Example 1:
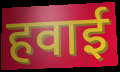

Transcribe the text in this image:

हवाई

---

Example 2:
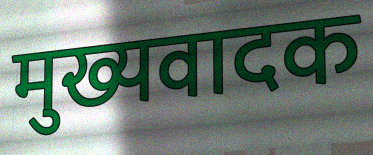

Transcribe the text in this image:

मुख्यवादक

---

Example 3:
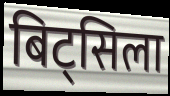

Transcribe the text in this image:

बिट्सिला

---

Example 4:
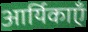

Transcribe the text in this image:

आर्यिकाएँ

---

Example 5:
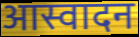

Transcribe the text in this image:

आस्वादन